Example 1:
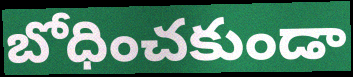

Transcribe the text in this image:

బోధించకుండా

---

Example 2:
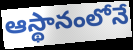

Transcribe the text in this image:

ఆస్థానంలోనే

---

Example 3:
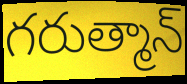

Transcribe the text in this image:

గరుత్మాన్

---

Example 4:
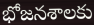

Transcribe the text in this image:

భోజనశాలకు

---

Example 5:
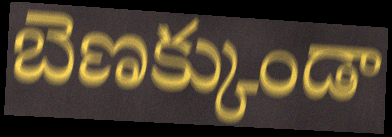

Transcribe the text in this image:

బెణక్కుండా